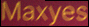
Maxyes